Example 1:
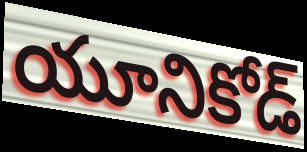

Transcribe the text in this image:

యూనికోడ్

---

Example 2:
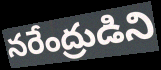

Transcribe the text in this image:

నరేంద్రుడిని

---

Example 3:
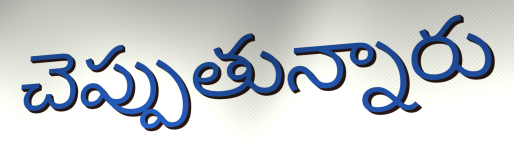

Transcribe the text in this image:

చెప్పుతున్నారు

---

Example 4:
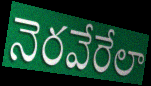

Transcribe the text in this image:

నెరవేరేలా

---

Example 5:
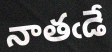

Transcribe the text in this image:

నాతఁడే